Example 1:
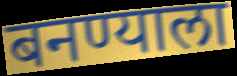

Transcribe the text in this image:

बनण्याला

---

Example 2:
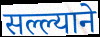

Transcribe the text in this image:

सल्ल्याने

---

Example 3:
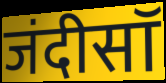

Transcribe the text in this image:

जंदीसॉ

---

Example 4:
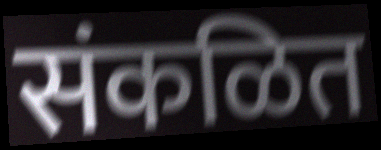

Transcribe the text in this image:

संकळित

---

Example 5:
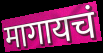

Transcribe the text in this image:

मागायचं